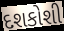
દશકોશી